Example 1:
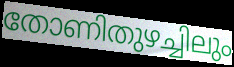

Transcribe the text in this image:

തോണിതുഴച്ചിലും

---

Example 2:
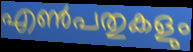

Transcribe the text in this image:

എൺപതുകളും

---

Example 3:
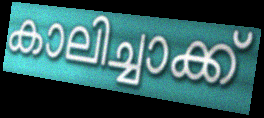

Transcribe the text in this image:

കാലിച്ചാക്ക്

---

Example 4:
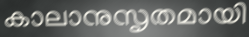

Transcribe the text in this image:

കാലാനുസൃതമായി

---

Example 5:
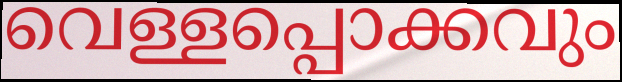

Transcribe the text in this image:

വെള്ളപ്പൊക്കവും